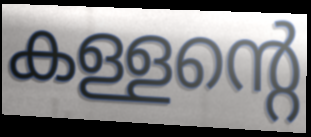
കള്ളന്റെ